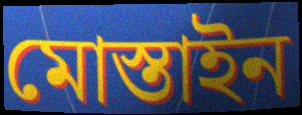
মোস্তাইন